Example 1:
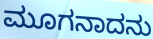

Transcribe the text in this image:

ಮೂಗನಾದನು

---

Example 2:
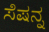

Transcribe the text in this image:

ಸೆಷನ್ನ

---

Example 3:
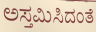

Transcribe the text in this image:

ಅಸ್ತಮಿಸಿದಂತೆ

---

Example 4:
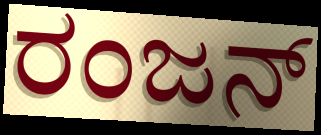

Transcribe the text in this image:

ರಂಜನ್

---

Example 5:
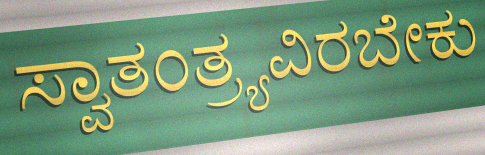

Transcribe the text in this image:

ಸ್ವಾತಂತ್ರ್ಯವಿರಬೇಕು